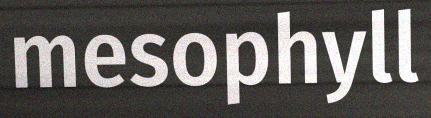
mesophyll